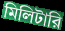
মিলিটারি